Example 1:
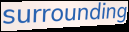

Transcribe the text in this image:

surrounding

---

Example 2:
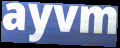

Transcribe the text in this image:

ayvm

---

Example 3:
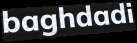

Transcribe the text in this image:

baghdadi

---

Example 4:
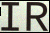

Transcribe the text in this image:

IR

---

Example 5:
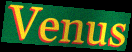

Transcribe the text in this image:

Venus